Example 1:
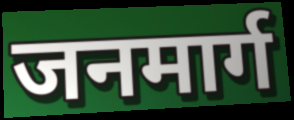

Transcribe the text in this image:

जनमार्ग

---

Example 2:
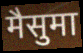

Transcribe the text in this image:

मैसुमा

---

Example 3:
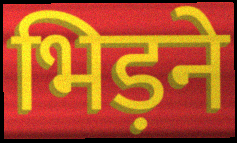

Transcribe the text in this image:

भिड़ने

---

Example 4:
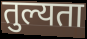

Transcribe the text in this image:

तुल्यता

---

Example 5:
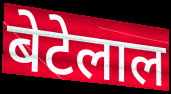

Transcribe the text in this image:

बेटेलाल